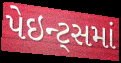
પેઇન્ટ્સમાં